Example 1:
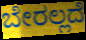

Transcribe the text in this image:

ಬೇರಲ್ಲದೆ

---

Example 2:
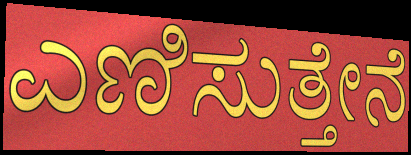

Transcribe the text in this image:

ಎಣಿಸುತ್ತೇನೆ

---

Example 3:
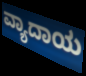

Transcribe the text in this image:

ವ್ಯಾದಾಯ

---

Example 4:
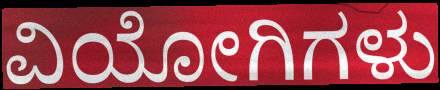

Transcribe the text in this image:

ವಿಯೋಗಿಗಳು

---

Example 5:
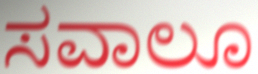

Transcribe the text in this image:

ಸವಾಲೂ